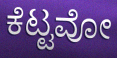
ಕೆಟ್ಟವೋ